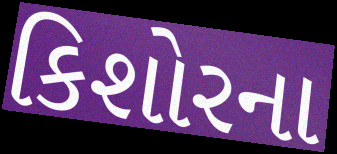
કિશોરના